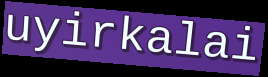
uyirkalai